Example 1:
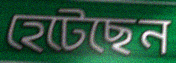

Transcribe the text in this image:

হেটেছেন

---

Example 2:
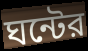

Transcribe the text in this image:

ঘন্টের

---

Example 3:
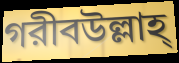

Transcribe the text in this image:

গরীবউল্লাহ্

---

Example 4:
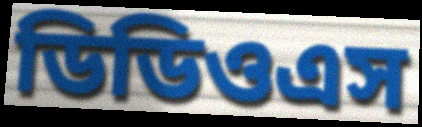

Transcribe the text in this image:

ডিডিওএস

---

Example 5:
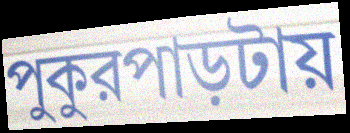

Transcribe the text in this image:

পুকুরপাড়টায়